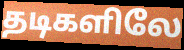
தடிகளிலே